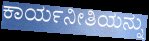
ಕಾರ್ಯನೀತಿಯನ್ನು